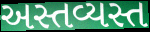
અસ્તવ્યસ્ત